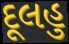
દૂલહુ